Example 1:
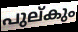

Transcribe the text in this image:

പുല്കും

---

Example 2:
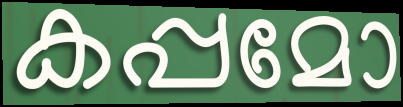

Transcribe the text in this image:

കപ്പമോ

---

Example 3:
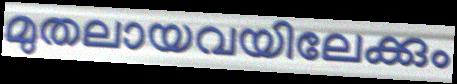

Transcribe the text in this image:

മുതലായവയിലേക്കും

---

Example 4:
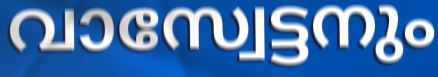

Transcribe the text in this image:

വാസ്വേട്ടനും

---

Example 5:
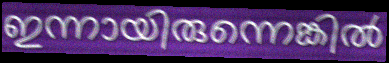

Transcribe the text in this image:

ഇന്നായിരുന്നെങ്കിൽ